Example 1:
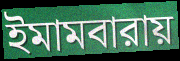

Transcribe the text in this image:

ইমামবারায়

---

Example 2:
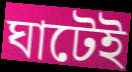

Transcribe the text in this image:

ঘাটেই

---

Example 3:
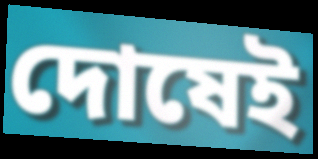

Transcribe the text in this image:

দোষেই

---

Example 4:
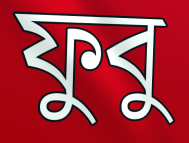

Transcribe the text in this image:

ফুবু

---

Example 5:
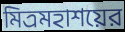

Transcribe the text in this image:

মিত্রমহাশয়ের